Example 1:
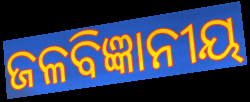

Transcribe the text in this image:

ଜଳବିଜ୍ଞାନୀୟ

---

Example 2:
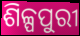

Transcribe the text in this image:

ଶିଳ୍ପପୁରୀ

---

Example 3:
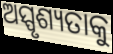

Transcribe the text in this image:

ଅସ୍ପୃଶ୍ୟତାକୁ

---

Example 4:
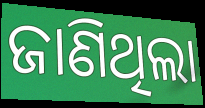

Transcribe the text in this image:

ଜାଣିଥିଲା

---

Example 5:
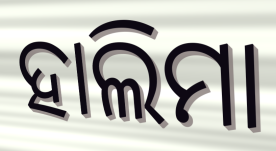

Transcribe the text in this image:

ହାଲିମା